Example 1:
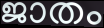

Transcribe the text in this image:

ജാതം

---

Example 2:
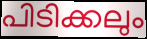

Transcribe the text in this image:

പിടിക്കലും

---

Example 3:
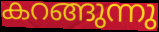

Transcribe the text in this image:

കറങ്ങുന്നു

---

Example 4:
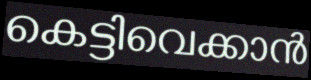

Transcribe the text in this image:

കെട്ടിവെക്കാൻ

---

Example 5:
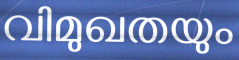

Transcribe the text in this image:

വിമുഖതയും